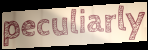
peculiarly